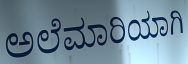
ಅಲೆಮಾರಿಯಾಗಿ